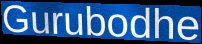
Gurubodhe